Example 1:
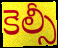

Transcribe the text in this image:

కెల్సీ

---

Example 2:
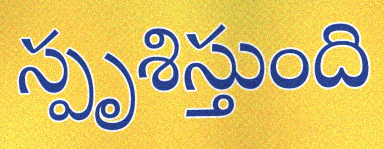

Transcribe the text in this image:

స్పృశిస్తుంది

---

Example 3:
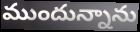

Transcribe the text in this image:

ముందున్నాను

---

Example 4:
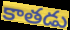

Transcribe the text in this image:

కాతడు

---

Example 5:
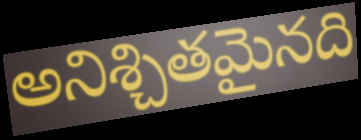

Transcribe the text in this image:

అనిశ్చితమైనది